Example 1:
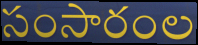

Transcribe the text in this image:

సంసారంల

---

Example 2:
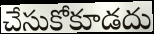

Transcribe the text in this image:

చేసుకోకూడదు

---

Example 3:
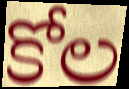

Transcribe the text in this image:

కోల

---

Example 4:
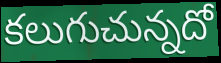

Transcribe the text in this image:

కలుగుచున్నదో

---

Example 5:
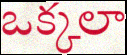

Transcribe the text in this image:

ఒక్కలా